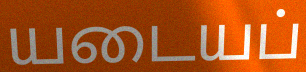
யடையப்